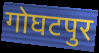
गोघटपुर